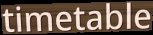
timetable